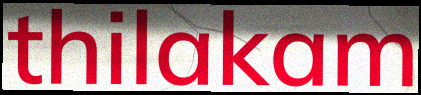
thilakam